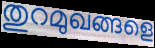
തുറമുഖങ്ങളെ